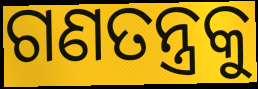
ଗଣତନ୍ତ୍ରକୁ